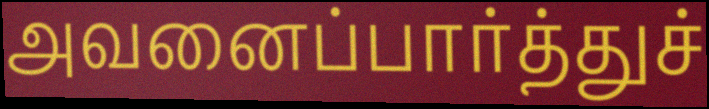
அவனைப்பார்த்துச்